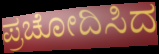
ಪ್ರಚೋದಿಸಿದ